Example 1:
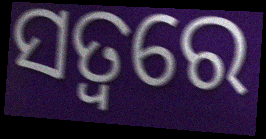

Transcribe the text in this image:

ସତ୍ଵରେ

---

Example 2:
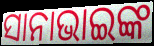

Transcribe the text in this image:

ସାନାଭାଇଙ୍କ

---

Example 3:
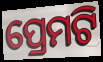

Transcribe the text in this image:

ପ୍ରେମଟି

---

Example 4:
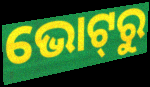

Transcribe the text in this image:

ଭୋଟ୍‌ରୁ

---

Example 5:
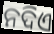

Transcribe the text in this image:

ନଦିଏ